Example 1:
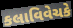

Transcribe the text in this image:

કલાવિવેચકે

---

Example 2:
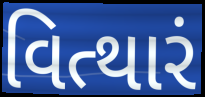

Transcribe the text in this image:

વિત્થારં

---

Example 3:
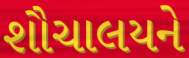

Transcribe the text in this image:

શૌચાલયને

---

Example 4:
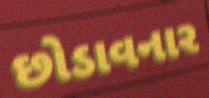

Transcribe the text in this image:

છોડાવનાર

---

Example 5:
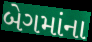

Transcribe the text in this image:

બેગમાંના